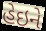
હેઇને